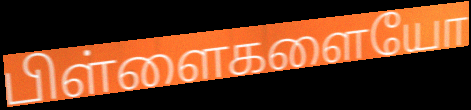
பிள்ளைகளையோ